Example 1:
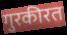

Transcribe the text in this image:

गुरकीरत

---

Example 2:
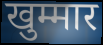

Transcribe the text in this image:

खुम्मार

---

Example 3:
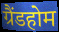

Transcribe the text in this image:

ग्रैंडहोम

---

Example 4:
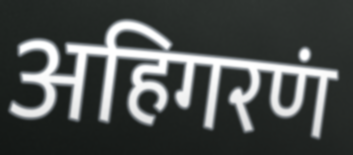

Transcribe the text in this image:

अहिगरणं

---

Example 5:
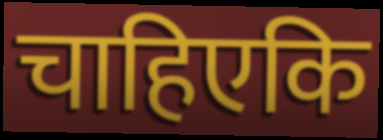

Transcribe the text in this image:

चाहिएकि